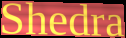
Shedra